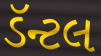
ડૅન્ટલ